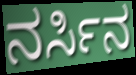
ನರ್ಸಿನ